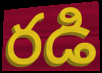
రడి